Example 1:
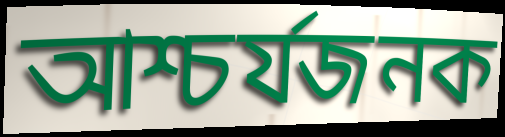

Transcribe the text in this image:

আশ্চৰ্যজনক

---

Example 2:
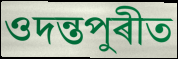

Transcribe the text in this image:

ওদন্তপুৰীত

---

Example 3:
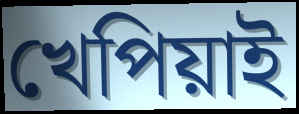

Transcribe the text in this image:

খেপিয়াই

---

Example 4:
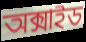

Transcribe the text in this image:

অক্সাইড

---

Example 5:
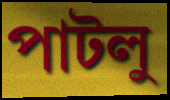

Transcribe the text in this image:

পাটলু